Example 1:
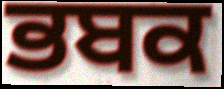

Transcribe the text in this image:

ਭਬਕ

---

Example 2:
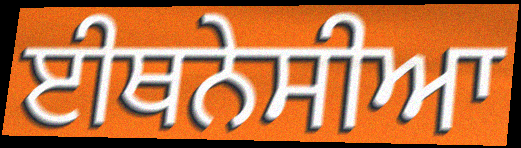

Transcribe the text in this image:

ਈਥਨੇਸੀਆ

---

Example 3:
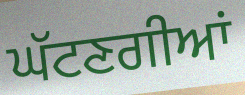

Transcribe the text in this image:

ਘੱਟਣਗੀਆਂ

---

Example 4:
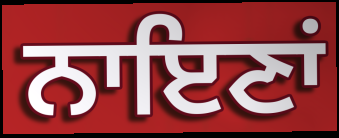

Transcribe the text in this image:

ਨਾਇਣਾਂ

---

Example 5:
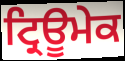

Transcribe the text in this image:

ਟ੍ਰਿਊਮੇਕ